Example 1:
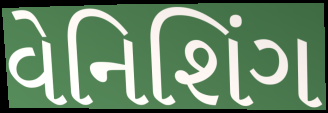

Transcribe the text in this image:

વેનિશિંગ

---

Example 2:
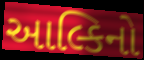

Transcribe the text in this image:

આલ્કિનો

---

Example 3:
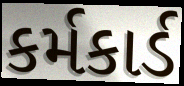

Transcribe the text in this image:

કર્મકાર્ડ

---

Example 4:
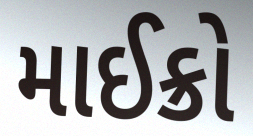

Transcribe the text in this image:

માઈક્રો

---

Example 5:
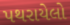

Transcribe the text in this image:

પથરાયેલો